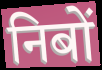
निबों